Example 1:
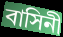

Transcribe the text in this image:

বাসিনী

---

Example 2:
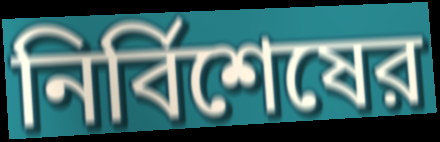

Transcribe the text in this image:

নির্বিশেষের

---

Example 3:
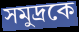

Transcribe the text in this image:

সমুদ্রকে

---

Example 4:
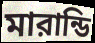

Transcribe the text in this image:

মারান্ডি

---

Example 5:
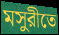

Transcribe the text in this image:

মসুরীতে